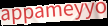
appameyyo